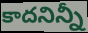
కాదనిన్నీ